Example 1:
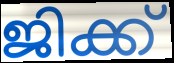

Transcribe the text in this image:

ജിക്ക്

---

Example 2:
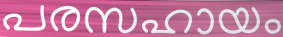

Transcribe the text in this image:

പരസഹായം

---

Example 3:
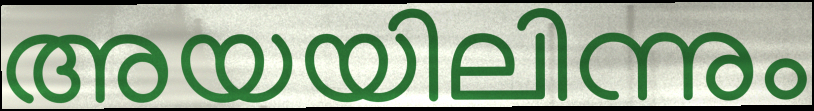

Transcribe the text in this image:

അയയിലിന്നും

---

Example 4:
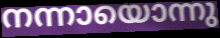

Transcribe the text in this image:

നന്നായൊന്നു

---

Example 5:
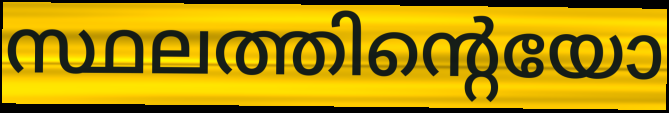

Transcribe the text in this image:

സ്ഥലത്തിന്റെയോ